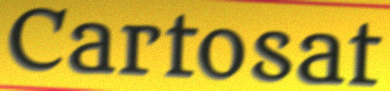
Cartosat